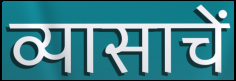
व्यासाचें